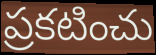
ప్రకటించు